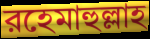
রহেমাহুল্লাহ